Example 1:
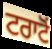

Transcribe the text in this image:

ਟਰਾਟੋਂ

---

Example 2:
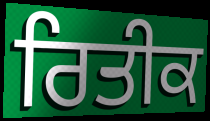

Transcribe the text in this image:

ਰਿਤੀਕ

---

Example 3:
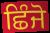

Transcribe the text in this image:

ਛਿੰਜੋ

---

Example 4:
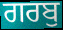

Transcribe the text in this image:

ਗਰਬੁ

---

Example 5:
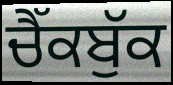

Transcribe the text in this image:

ਚੈੱਕਬੁੱਕ